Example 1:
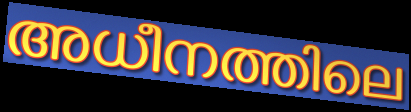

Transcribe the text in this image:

അധീനത്തിലെ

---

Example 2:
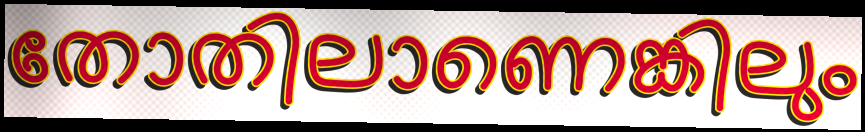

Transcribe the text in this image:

തോതിലാണെങ്കിലും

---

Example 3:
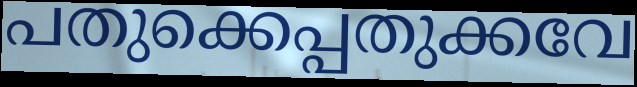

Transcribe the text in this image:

പതുക്കെപ്പതുക്കവേ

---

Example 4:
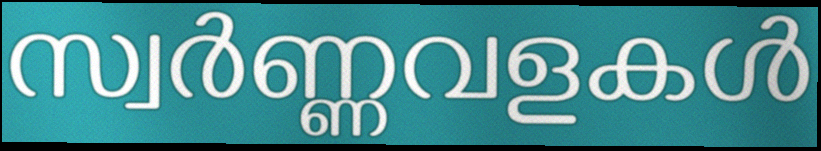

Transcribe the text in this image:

സ്വർണ്ണവളകൾ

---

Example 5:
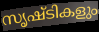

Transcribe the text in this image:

സൃഷ്ടികളും